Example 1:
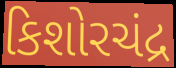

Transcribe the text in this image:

કિશોરચંદ્ર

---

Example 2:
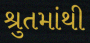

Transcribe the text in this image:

શ્રુતમાંથી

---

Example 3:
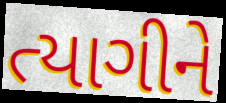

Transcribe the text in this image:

ત્યાગીને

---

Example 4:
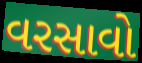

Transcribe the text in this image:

વરસાવો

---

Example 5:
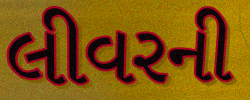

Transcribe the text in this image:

લીવરની